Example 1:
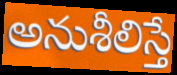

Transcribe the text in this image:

అనుశీలిస్తే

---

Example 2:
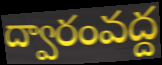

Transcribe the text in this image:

ద్వారంవద్ద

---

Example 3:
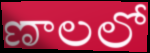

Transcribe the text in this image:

ణాలలో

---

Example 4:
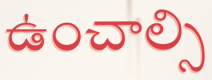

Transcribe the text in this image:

ఉంచాల్సి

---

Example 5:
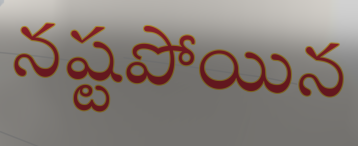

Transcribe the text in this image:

నష్టపోయిన